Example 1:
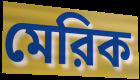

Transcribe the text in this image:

মেরিক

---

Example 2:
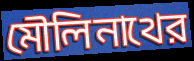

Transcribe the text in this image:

মৌলিনাথের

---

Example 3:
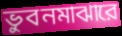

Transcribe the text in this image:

ভুবনমাঝারে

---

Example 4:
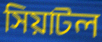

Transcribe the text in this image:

সিয়াটল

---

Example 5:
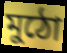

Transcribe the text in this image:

মুঠো